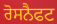
ਰੋਸਨੈਫਟ